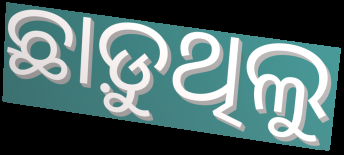
ଛାଡ଼ୁଥିଲୁ